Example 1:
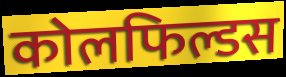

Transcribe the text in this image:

कोलफिल्डस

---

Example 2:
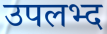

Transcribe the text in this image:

उपलभ्द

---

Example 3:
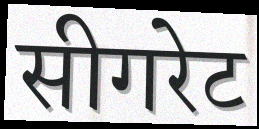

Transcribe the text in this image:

सीगरेट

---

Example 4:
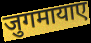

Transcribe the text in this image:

जुगमायाए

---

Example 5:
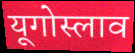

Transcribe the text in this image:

यूगोस्लाव